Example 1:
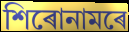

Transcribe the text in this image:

শিৰোনামৰে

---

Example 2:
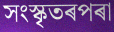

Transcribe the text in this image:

সংস্কৃতৰপৰা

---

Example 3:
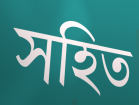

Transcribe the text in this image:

সহিত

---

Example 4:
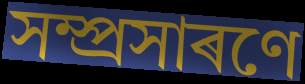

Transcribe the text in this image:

সম্প্ৰসাৰণে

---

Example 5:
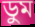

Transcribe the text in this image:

ডুম